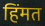
हिंमत